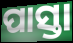
ପାସ୍ତା